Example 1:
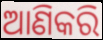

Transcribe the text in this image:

ଆଣିକରି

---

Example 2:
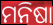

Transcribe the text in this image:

ମନିଷା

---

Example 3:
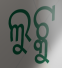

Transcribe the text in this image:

ଲୁଟ୍କୁ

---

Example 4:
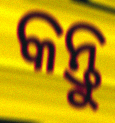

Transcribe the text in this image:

କନ୍ତୁ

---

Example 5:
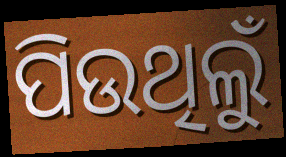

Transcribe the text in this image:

ପିଉଥିଲୁଁ